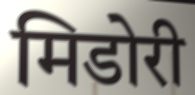
मिडोरी